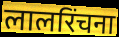
लालरिंचना